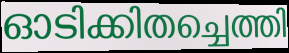
ഓടിക്കിതച്ചെത്തി